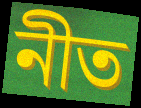
নীত